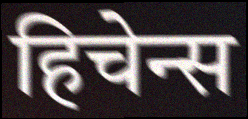
हिचेन्स